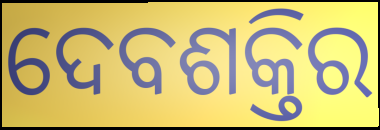
ଦେବଶକ୍ତିର